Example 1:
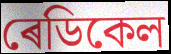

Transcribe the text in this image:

ৰেডিকেল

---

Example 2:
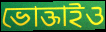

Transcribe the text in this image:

ভোক্তাইও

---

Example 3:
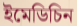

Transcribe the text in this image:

ইমেডিচিন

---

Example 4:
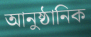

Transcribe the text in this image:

আনুষ্ঠানিক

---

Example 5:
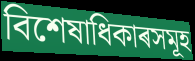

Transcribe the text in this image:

বিশেষাধিকাৰসমূহ